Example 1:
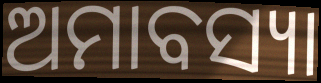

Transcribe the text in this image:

ଅମାବସ୍ୟା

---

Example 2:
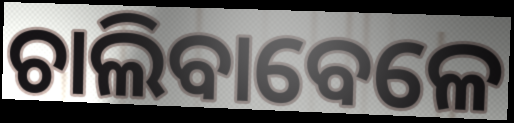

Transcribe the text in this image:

ଚାଲିବାବେଳେ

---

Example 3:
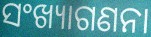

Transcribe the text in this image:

ସଂଖ୍ୟାଗଣନା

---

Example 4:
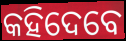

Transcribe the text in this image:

କହିଦେବେ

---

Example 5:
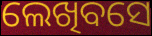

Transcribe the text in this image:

ଲେଖିବସେ